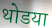
थोडया